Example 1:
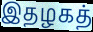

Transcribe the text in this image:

இதழகத்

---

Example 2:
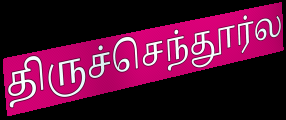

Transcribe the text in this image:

திருச்செந்தூர்ல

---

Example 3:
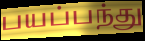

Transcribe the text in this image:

பயப்பந்து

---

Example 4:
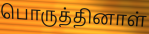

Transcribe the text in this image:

பொருத்தினாள்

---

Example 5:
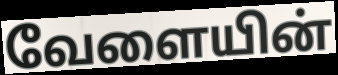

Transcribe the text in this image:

வேளையின்